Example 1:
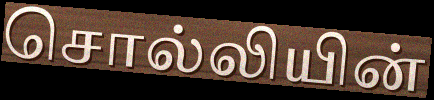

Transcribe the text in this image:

சொல்லியின்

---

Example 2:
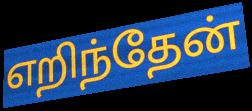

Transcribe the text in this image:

எறிந்தேன்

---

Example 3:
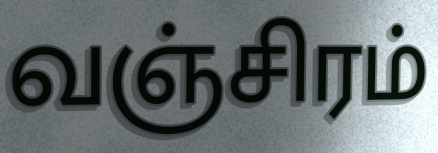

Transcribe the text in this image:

வஞ்சிரம்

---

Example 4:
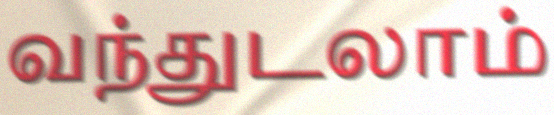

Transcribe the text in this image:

வந்துடலாம்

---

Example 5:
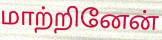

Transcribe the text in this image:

மாற்றினேன்